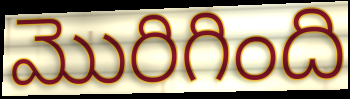
మొరిగింది